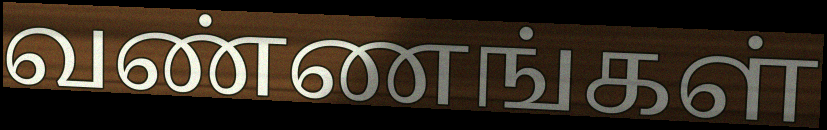
வண்ணங்கள்